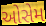
ઓસેમ